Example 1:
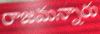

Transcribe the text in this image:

రాజమన్నారు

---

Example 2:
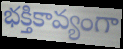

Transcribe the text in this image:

భక్తికావ్యంగా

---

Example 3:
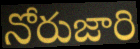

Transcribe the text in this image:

నోరుజారి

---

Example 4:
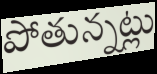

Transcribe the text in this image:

పోతున్నట్లు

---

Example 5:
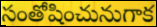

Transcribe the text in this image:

సంతోషించునుగాక